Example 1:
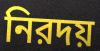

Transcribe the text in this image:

নিরদয়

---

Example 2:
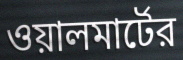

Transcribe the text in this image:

ওয়ালমার্টের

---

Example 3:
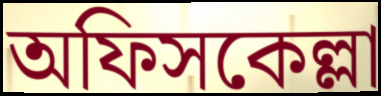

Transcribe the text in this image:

অফিসকেল্লা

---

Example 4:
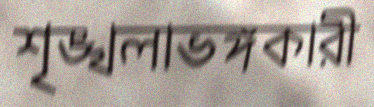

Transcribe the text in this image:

শৃঙ্খলাভঙ্গকারী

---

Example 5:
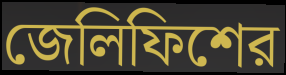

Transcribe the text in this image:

জেলিফিশের